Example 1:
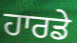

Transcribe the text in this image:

ਹਾਰਡੇ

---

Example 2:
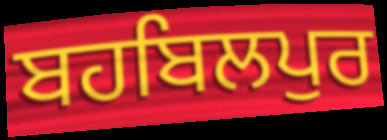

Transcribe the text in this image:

ਬਹਬਿਲਪੁਰ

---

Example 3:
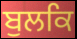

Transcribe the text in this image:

ਬੁਲਕਿ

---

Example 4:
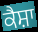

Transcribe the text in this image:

ਕੈਸ਼ਾ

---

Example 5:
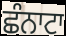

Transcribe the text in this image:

ਛੰਨਾਟਾ